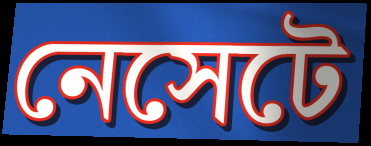
নেসেটে